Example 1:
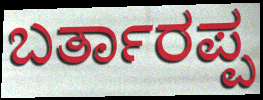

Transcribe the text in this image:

ಬರ್ತಾರಪ್ಪ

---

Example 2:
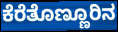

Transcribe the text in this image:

ಕೆರೆತೊಣ್ಣೂರಿನ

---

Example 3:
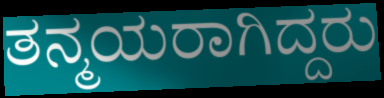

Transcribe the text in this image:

ತನ್ಮಯರಾಗಿದ್ದರು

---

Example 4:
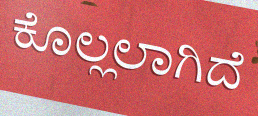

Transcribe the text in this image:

ಕೊಲ್ಲಲಾಗಿದೆ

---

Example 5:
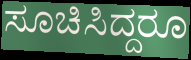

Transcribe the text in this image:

ಸೂಚಿಸಿದ್ದರೂ